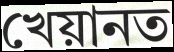
খেয়ানত